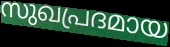
സുഖപ്രദമായ